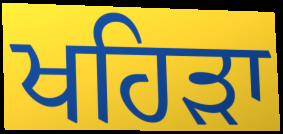
ਖਹਿਡ਼ਾ